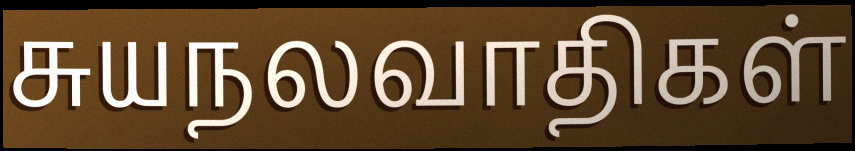
சுயநலவாதிகள்